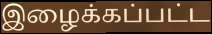
இழைக்கப்பட்ட